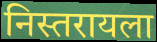
निस्तरायला